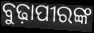
ବୁଢ଼ାପୀରଙ୍କ